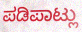
ಪಡಿಪಾಟ್ಲು